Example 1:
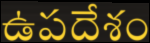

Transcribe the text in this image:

ఉపదేశం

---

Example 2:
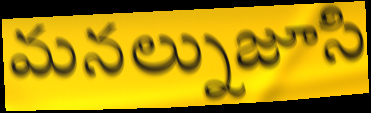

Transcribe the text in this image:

మనల్నుజూసి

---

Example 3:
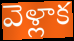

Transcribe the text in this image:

వెళ్లాక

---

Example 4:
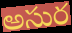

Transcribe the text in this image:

అసుర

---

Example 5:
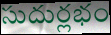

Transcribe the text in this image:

సుదుర్లభం